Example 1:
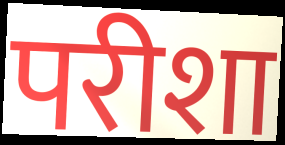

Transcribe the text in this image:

परीशा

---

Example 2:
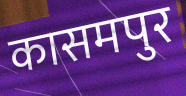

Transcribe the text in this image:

कासमपुर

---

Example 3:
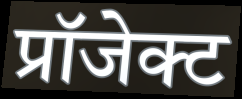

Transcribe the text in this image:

प्रॉजेक्‍ट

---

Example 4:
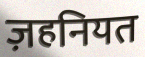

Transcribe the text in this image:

ज़हनियत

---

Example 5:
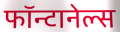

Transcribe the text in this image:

फॉन्टानेल्स